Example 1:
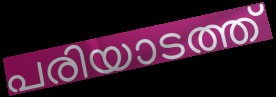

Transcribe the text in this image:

പരിയാടത്ത്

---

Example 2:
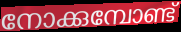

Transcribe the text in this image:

നോക്കുമ്പോണ്ട്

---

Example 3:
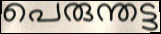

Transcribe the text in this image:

പെരുന്തട്ട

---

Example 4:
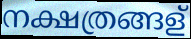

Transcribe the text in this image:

നക്ഷത്രങ്ങള്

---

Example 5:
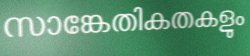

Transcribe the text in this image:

സാങ്കേതികതകളും